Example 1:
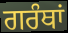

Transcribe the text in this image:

ਗਰੰਥਾਂ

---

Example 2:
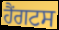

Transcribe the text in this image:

ਹੈਂਗਟਸ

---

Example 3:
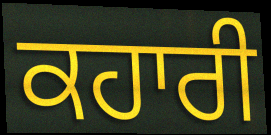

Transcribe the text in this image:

ਕਹਾਰੀ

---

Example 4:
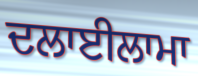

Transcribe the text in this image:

ਦਲਾਈਲਾਮਾ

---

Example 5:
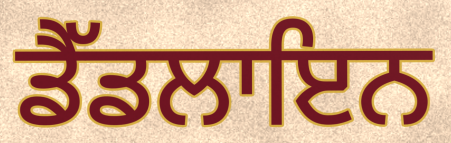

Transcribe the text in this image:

ਡੈੱਡਲਾਇਨ